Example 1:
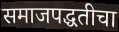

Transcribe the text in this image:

समाजपद्धतीचा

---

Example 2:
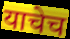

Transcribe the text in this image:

याचेच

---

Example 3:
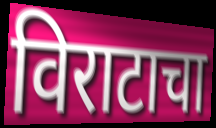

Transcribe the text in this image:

विराटाचा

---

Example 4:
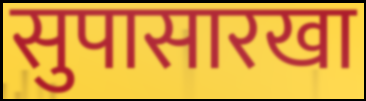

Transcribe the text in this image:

सुपासारखा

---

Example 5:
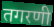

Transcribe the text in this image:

तगरणी